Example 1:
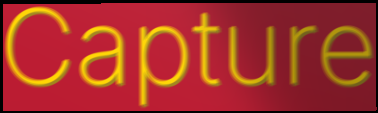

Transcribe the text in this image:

Capture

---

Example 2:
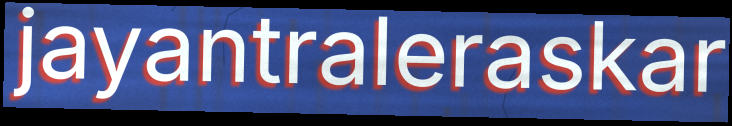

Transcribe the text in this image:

jayantraleraskar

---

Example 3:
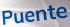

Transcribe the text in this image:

Puente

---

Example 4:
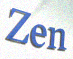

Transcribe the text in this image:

Zen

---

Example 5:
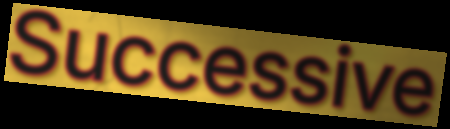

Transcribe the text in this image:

Successive